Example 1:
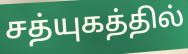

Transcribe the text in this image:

சத்யுகத்தில்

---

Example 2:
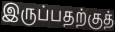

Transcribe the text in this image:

இருப்பதற்குத்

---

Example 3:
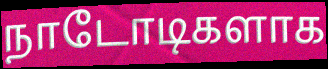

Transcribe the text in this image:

நாடோடிகளாக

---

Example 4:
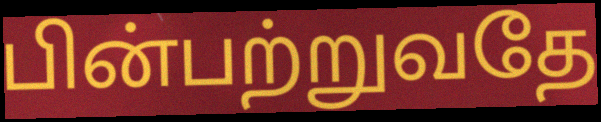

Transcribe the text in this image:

பின்பற்றுவதே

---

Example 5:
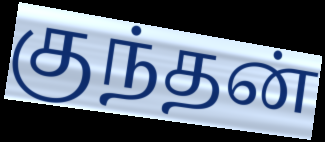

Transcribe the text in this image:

குந்தன்